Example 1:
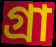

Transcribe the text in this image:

গ্রা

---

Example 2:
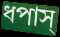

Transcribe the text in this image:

ধপাস্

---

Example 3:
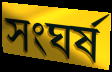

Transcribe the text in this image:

সংঘর্ষ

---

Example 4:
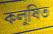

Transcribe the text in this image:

কলুষিত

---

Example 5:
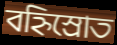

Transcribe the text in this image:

বহ্নিস্রোত